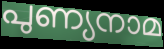
പുണ്യനാമ